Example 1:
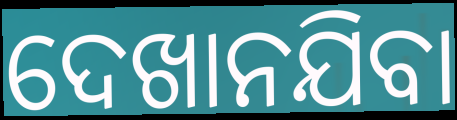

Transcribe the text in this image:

ଦେଖାନଯିବା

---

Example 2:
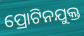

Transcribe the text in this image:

ପ୍ରୋଟିନଯୁକ୍ତ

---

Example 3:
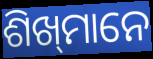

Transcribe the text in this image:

ଶିଖ୍‌ମାନେ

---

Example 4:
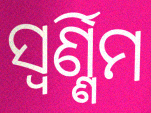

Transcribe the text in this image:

ସ୍ୱର୍ଣ୍ଣିମ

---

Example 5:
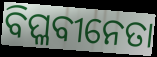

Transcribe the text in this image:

ବିପ୍ଳବୀନେତା